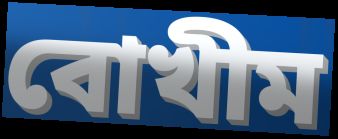
বোখীম